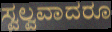
ಸ್ವಲ್ವವಾದರೂ